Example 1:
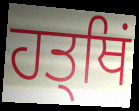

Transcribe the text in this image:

ਹਤ੍ਥਿਂ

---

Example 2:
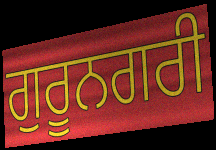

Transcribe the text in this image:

ਗੁਰੂਨਗਰੀ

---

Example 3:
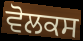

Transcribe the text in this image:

ਵੋਲਕਸ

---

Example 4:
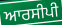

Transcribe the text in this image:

ਆਰਸੀਪੀ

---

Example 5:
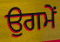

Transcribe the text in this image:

ਉਗਮੇਂ